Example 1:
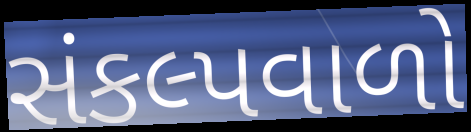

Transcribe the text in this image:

સંકલ્પવાળો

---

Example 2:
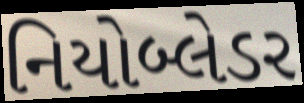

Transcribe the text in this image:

નિયોબ્લેડર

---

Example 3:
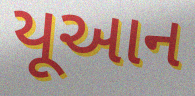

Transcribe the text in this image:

યૂઆન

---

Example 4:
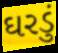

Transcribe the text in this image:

ઘરડું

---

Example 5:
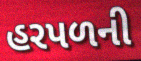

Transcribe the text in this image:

હરપળની